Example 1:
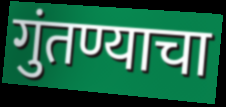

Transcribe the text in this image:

गुंतण्याचा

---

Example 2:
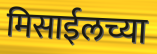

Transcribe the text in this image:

मिसाईलच्या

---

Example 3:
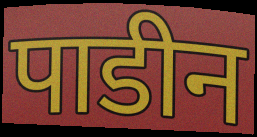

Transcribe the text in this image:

पाडीन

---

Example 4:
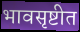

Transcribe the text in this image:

भावसृष्टीत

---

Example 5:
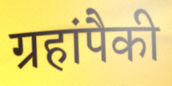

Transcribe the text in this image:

ग्रहांपैकी